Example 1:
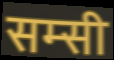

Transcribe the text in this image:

सम्सी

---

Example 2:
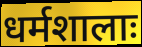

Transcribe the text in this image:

धर्मशालाः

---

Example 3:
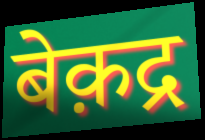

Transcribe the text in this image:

बेक़द्र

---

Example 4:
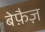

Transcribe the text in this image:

बेफ़ैज़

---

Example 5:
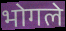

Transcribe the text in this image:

भोगले